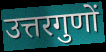
उत्तरगुणों